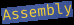
Assembly